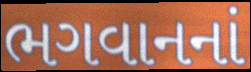
ભગવાનનાં